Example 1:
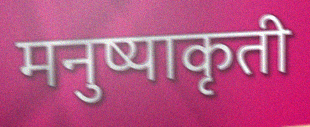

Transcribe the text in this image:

मनुष्याकृती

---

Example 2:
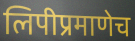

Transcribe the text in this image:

लिपीप्रमाणेच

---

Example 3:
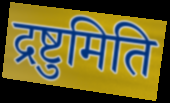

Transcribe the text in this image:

द्रष्टुमिति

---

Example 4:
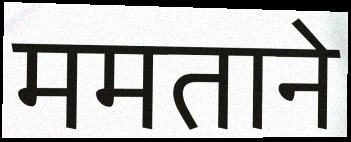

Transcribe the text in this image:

ममताने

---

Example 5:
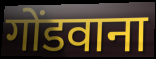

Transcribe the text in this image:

गोंडवाना